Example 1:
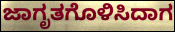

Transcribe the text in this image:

ಜಾಗೃತಗೊಳಿಸಿದಾಗ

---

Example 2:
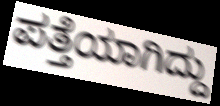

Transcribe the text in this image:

ಪತ್ತೆಯಾಗಿದ್ದು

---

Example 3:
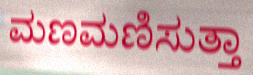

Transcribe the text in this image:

ಮಣಮಣಿಸುತ್ತಾ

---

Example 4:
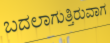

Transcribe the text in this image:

ಬದಲಾಗುತ್ತಿರುವಾಗ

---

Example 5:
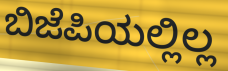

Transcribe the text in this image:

ಬಿಜೆಪಿಯಲ್ಲಿಲ್ಲ